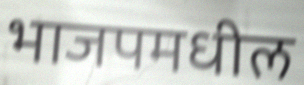
भाजपमधील